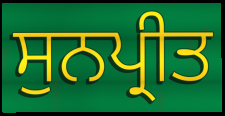
ਸੁਨਪ੍ਰੀਤ